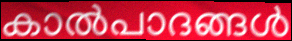
കാൽപാദങ്ങൾ